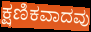
ಕ್ಷಣಿಕವಾದವು